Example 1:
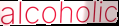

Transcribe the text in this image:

alcoholic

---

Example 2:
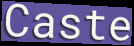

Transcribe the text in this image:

Caste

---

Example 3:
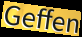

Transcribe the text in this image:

Geffen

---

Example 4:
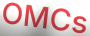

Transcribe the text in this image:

OMCs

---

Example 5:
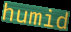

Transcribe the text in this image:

humid